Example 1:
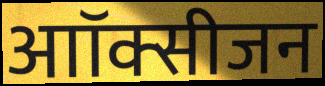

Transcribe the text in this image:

आॉक्सीजन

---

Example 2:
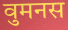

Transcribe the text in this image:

वुमनस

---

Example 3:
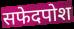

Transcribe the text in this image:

सफेदपोश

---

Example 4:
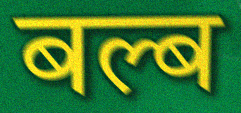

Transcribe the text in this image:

बल्‍ब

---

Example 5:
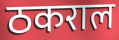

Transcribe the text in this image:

ठकराल